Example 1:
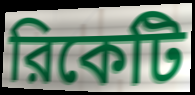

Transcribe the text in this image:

রিকেটি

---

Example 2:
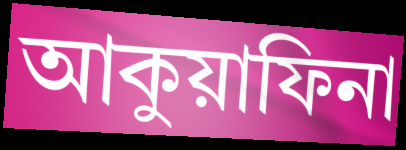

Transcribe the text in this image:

আকুয়াফিনা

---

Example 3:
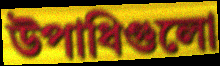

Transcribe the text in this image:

উপাধিগুলো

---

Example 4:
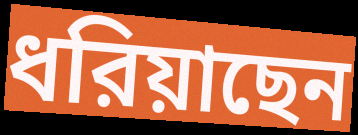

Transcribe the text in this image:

ধরিয়াছেন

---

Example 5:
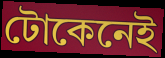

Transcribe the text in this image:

টোকেনেই